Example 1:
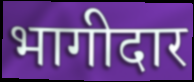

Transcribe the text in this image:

भागीदार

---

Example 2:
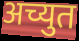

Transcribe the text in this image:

अच्‍युत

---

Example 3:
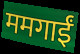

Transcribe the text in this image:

ममगाईं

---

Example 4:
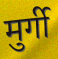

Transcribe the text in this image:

मुर्गी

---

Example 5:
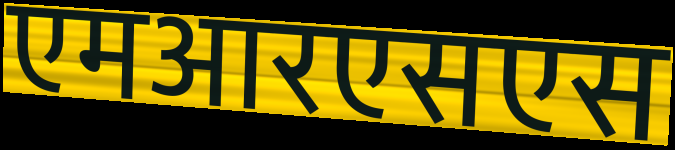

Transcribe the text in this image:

एमआरएसएस